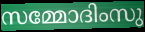
സമ്മോദിംസു